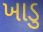
ખાડુ